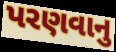
પરણવાનુ